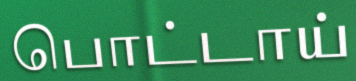
பொட்டாய்